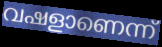
വഷളാണെന്ന്